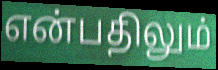
என்பதிலும்